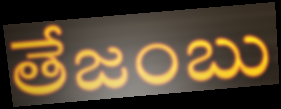
తేజంబు